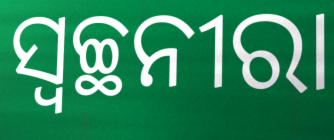
ସ୍ୱଚ୍ଛନୀରା